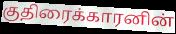
குதிரைக்காரனின்